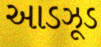
આડઝૂડ